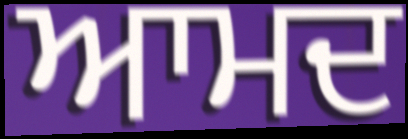
ਆਮਦ